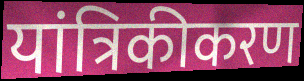
यांत्रिकीकरण